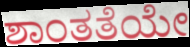
ಶಾಂತತೆಯೇ